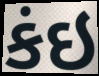
કંઇ